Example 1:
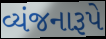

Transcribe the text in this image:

વ્યંજનારૂપે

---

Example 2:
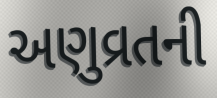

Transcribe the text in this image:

અણુવ્રતની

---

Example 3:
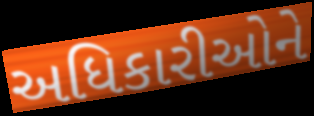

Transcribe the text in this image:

અધિકારીઓને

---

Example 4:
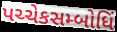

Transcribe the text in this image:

પચ્ચેકસમ્બોધિં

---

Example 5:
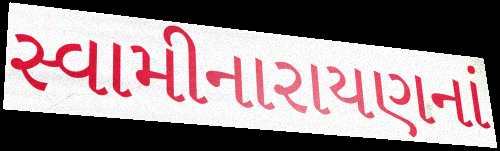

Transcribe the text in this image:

સ્વામીનારાયણનાં